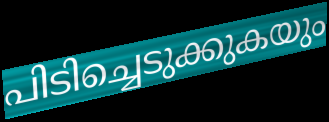
പിടിച്ചെടുക്കുകയും